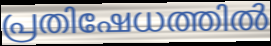
പ്രതിഷേധത്തിൽ